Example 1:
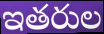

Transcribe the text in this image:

ఇతరుల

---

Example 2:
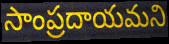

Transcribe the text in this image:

సాంప్రదాయమని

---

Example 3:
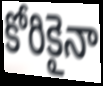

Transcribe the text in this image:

కోరికైనా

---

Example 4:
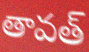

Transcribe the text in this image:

తావత్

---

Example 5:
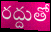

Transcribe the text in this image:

రద్దుతో